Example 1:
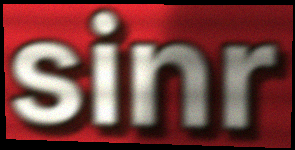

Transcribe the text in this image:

sinr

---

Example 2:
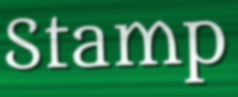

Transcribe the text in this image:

Stamp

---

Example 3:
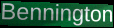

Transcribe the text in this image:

Bennington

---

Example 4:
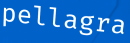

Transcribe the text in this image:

pellagra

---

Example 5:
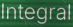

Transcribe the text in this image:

Integral